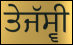
ਤੇਜੱਸ੍ਵੀ